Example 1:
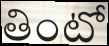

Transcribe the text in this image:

తింటో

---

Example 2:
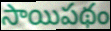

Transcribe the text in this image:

సాయిపథం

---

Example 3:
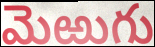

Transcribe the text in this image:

మెఱుగు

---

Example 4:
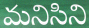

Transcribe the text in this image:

మనిసిని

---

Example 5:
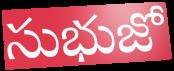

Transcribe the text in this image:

సుభుజో